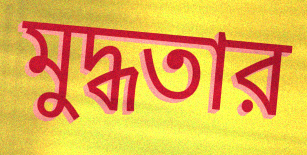
মুদ্ধতার